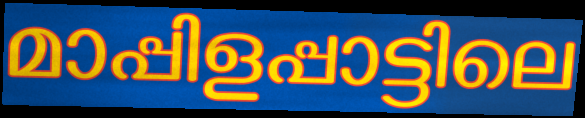
മാപ്പിളപ്പാട്ടിലെ